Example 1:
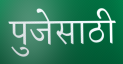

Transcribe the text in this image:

पुजेसाठी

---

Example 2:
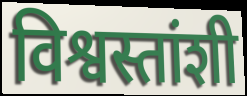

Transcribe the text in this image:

विश्वस्तांशी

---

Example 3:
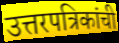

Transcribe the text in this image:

उत्तरपत्रिकांची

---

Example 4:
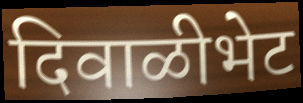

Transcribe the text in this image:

दिवाळीभेट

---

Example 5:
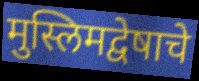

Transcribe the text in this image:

मुस्लिमद्वेषाचे